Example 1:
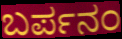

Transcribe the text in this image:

ಬರ್ಪನಂ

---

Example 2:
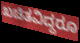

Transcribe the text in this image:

ಖಚಿತವಿದ್ದರೂ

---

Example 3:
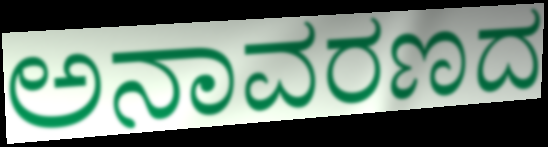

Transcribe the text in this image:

ಅನಾವರಣದ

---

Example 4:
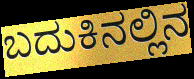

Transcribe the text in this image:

ಬದುಕಿನಲ್ಲಿನ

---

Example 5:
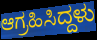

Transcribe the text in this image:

ಆಗ್ರಹಿಸಿದ್ದಳು